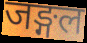
जङ्गल